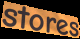
stores